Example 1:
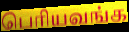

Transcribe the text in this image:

பெரியவங்க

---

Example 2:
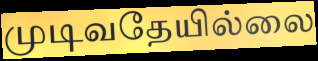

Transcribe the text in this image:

முடிவதேயில்லை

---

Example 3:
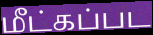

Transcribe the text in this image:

மீட்கப்பட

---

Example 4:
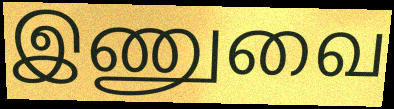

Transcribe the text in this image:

இணுவை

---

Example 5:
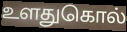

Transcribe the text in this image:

உளதுகொல்